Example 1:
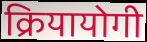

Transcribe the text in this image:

क्रियायोगी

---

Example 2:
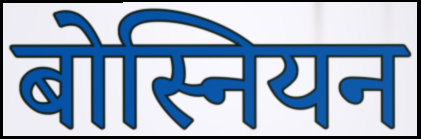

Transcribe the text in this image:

बोस्नियन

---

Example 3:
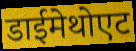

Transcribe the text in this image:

डाईमेथोएट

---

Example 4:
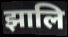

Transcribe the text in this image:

झालि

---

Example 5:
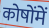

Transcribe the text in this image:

कोषोंमें